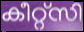
കീറ്റ്സി